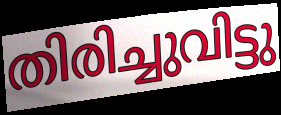
തിരിച്ചുവിട്ടു